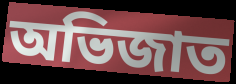
অভিজাত